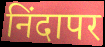
निंदापर